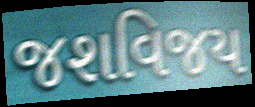
જશવિજય